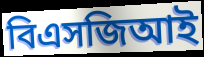
বিএসজিআই